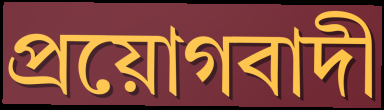
প্রয়োগবাদী